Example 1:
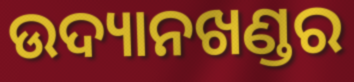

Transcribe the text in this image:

ଉଦ୍ୟାନଖଣ୍ଡର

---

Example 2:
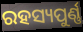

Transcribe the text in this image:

ରହସ୍ୟପୁର୍ଣ୍ଣ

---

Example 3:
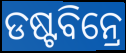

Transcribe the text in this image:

ଡଷ୍ଟବିନ୍ରେ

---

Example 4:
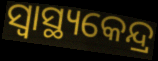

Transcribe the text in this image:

ସ୍ୱାସ୍ଥ୍ୟକେନ୍ଦ୍ର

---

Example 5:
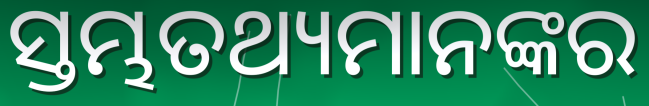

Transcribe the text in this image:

ସ୍ତମ୍ଭତଥ୍ୟମାନଙ୍କର